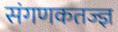
संगणकतज्ज्ञ